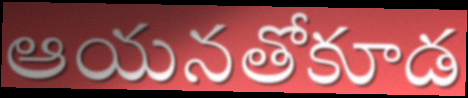
ఆయనతోకూడ